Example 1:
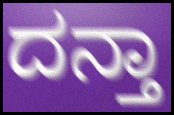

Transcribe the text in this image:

ದನ್ತಾ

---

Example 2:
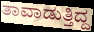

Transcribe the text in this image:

ತಾವಾಡುತ್ತಿದ್ದ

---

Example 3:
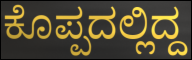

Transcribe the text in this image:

ಕೊಪ್ಪದಲ್ಲಿದ್ದ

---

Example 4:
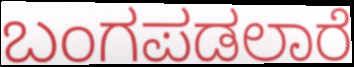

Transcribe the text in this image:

ಬಂಗಪಡಲಾರೆ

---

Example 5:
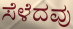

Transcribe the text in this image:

ಸೆಳೆದವು